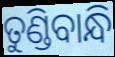
ତୁଣ୍ଡିବାନ୍ଧି